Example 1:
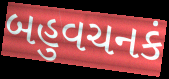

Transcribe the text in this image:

બહુવચનકં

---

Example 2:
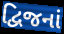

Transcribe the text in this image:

દ્વિજનાં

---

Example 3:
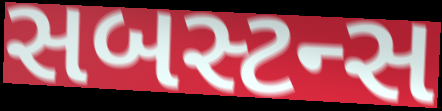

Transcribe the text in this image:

સબસ્ટન્સ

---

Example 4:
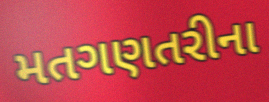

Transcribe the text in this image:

મતગણતરીના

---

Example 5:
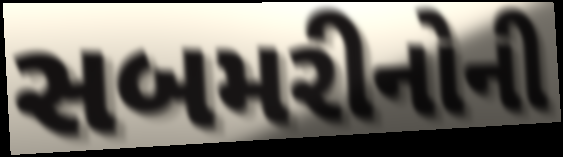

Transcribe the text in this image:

સબમરીનોની